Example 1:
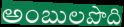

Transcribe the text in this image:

అంబులపొది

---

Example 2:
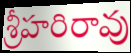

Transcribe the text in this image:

శ్రీహరిరావు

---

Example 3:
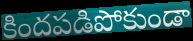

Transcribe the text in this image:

కిందపడిపోకుండా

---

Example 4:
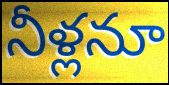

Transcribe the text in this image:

నీళ్లనూ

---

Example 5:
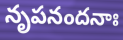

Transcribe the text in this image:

నృపనందనాః